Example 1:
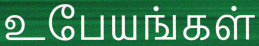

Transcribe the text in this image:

உபேயங்கள்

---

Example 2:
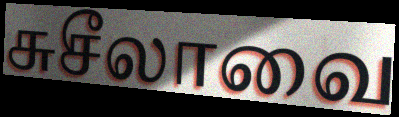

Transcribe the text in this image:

சுசீலாவை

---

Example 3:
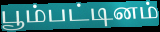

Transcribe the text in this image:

பூம்பட்டினம்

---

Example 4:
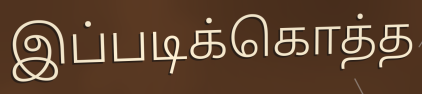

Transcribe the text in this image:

இப்படிக்கொத்த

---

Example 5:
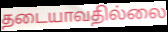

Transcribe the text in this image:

தடையாவதில்லை